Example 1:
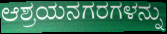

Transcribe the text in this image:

ಆಶ್ರಯನಗರಗಳನ್ನು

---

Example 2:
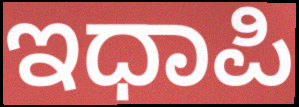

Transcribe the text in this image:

ಇಧಾಪಿ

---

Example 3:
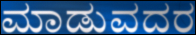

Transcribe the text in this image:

ಮಾಡುವದರ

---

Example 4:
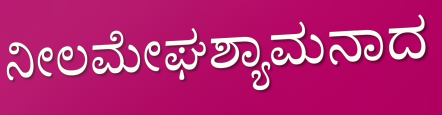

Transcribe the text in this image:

ನೀಲಮೇಘಶ್ಯಾಮನಾದ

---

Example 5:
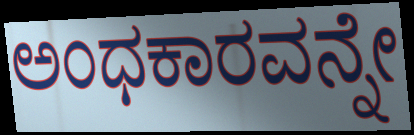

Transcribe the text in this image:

ಅಂಧಕಾರವನ್ನೇ